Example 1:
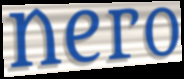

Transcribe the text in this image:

nero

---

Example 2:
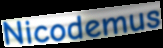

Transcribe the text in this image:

Nicodemus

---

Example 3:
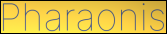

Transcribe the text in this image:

Pharaonis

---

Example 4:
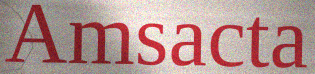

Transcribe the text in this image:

Amsacta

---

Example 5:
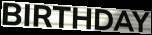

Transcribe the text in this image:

BIRTHDAY